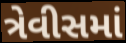
ત્રેવીસમાં